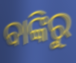
ବାଙ୍କିରୁ